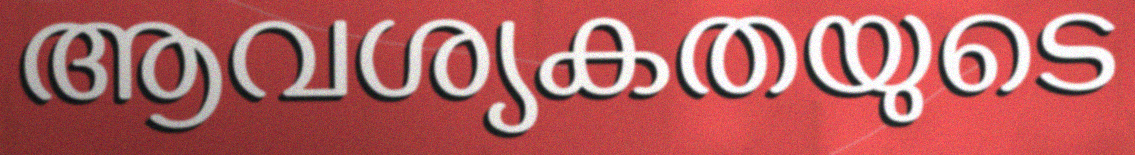
ആവശ്യകതയുടെ